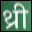
थ्री